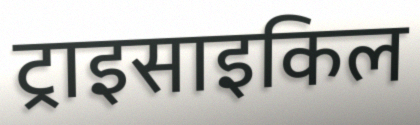
ट्राइसाइकिल